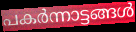
പകർന്നാട്ടങ്ങൾ